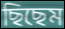
ছিছেম